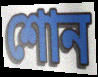
শোন